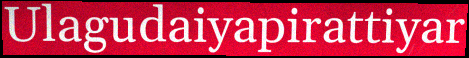
Ulagudaiyapirattiyar